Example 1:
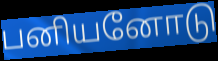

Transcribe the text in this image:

பனியனோடு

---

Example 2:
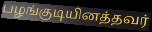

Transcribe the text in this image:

பழங்குடியினத்தவர்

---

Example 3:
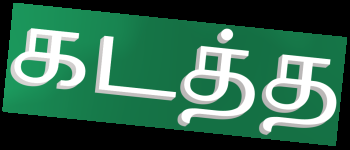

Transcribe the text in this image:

கடத்த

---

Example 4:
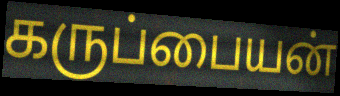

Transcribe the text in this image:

கருப்பையன்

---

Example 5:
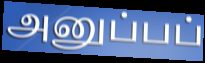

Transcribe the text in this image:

அனுப்பப்